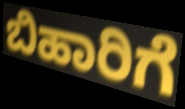
ಬಿಹಾರಿಗೆ